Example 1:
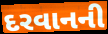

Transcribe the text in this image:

દરવાનની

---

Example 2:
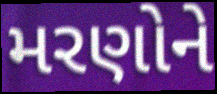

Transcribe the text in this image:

મરણોને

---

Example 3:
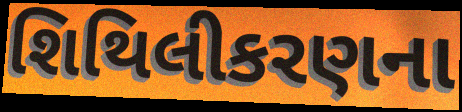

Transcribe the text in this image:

શિથિલીકરણના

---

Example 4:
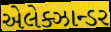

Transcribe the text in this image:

એલેક્ઝાન્ડર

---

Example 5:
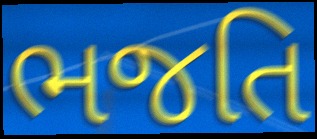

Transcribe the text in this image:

ભજતિ